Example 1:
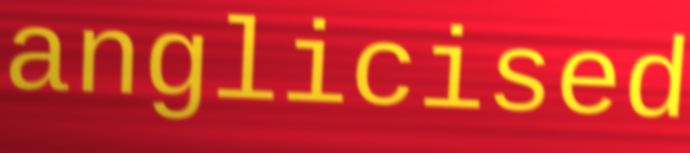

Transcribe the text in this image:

anglicised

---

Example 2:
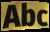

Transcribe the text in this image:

Abc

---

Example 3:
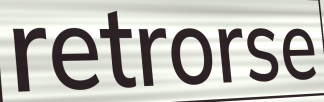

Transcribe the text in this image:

retrorse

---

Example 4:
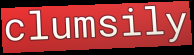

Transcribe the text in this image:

clumsily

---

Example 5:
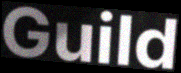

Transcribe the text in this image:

Guild